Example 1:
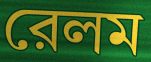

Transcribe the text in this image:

রেলম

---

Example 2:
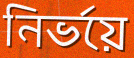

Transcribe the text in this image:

নির্ভয়ে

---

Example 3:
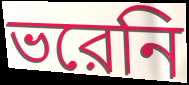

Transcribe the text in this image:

ভরেনি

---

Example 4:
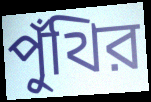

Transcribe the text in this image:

পুঁথির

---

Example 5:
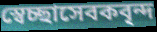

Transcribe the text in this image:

স্বেচ্ছাসেবকবৃন্দ